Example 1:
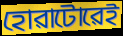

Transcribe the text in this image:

হোৱাটোৱেই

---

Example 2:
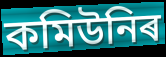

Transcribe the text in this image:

কমিউনিৰ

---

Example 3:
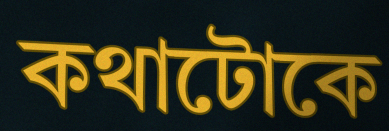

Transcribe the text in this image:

কথাটোকে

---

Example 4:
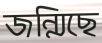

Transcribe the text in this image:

জন্মিছে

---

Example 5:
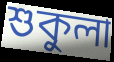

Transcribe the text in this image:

শুকুলা